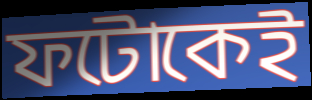
ফটোকেই